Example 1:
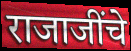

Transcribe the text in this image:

राजाजींचे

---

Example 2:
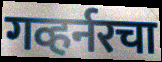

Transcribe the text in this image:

गव्हर्नरचा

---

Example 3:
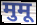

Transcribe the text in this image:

मुमू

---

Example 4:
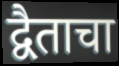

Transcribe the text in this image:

द्वैताचा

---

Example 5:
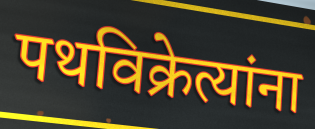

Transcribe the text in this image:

पथविक्रेत्यांना